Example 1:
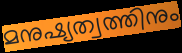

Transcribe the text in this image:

മനുഷ്യത്വത്തിനും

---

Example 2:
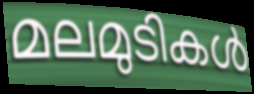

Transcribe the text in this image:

മലമുടികൾ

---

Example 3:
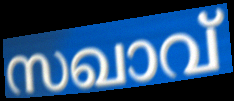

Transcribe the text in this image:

സഖാവ്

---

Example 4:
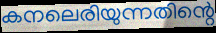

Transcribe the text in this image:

കനലെരിയുന്നതിന്റെ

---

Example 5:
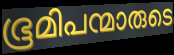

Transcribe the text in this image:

ഭൂമിപന്മാരുടെ